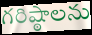
గరిష్ఠాలను